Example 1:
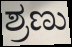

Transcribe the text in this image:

ಶ್ರಣು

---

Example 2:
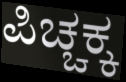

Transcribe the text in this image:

ಪಿಚ್ಚಕ್ಕ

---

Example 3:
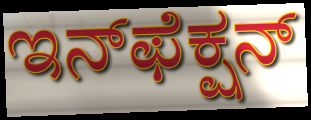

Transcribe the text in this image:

ಇನ್‌ಫೆಕ್ಷನ್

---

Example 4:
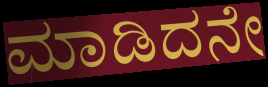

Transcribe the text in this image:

ಮಾಡಿದನೇ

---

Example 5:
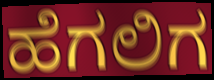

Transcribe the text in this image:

ಹೆಗಲಿಗ